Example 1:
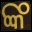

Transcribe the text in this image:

ଙ୍କ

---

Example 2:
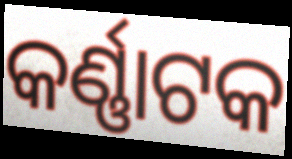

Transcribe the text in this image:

କର୍ଣ୍ଣାଟକ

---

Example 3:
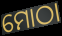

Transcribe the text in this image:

ମୋଠା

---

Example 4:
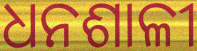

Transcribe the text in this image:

ଧନଶାଳୀ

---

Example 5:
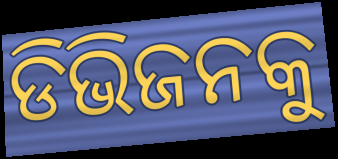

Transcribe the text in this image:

ଡିଭିଜନକୁ